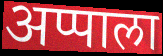
अप्पाला